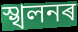
স্খলনৰ